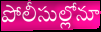
పోలీసుల్లోనూ